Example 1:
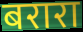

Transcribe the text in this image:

बरारा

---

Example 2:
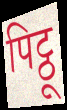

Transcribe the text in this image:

पिट्ठू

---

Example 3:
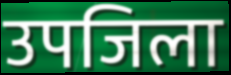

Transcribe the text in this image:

उपजिला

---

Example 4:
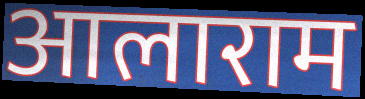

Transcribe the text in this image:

आलाराम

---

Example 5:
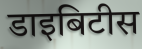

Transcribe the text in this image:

डाइबिटीस